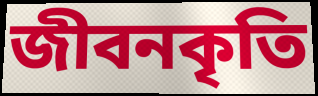
জীবনকৃতি